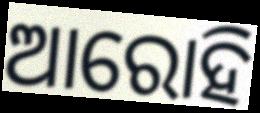
ଆରୋହି